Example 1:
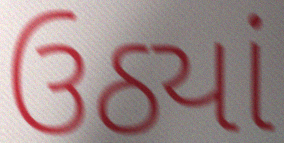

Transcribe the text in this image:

ઉઠ્યાં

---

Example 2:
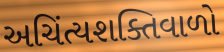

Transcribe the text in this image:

અચિંત્યશક્તિવાળો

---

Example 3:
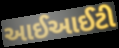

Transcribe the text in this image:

આઈઆઈટી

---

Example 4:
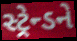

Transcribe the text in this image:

સ્ટ્રેન્ડને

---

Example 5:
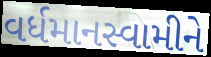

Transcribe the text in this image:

વર્ધમાનસ્વામીને